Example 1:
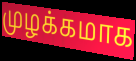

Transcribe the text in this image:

முழக்கமாக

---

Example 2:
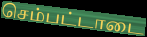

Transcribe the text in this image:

செம்பட்டாடை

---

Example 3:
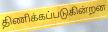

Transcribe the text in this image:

திணிக்கப்படுகின்றன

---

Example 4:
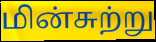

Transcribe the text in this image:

மின்சுற்று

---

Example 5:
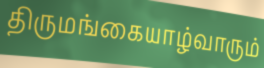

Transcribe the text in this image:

திருமங்கையாழ்வாரும்